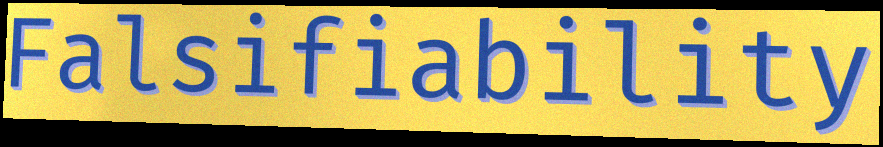
Falsifiability